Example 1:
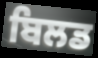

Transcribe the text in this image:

ਬਿਲਡ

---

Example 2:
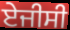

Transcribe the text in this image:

ਏਜੀਸੀ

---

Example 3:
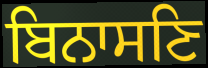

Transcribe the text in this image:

ਬਿਨਾਸਣਿ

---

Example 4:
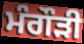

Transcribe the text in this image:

ਮੰਗੌੜੀ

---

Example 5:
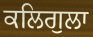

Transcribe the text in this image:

ਕਲਿਗੁਲਾ